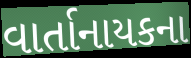
વાર્તાનાયકના